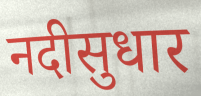
नदीसुधार